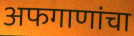
अफगाणांचा